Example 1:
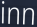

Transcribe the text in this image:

inn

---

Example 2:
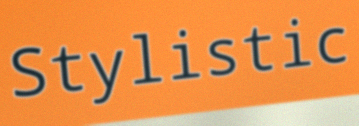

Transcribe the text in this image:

Stylistic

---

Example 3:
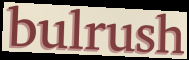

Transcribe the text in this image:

bulrush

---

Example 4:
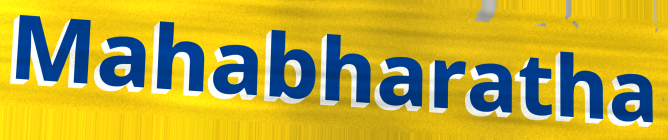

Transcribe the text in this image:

Mahabharatha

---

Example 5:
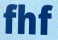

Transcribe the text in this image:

fhf